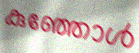
കുഞ്ഞോൾ